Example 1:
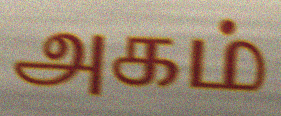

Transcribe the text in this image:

அகம்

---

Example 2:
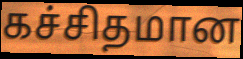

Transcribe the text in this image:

கச்சிதமான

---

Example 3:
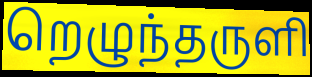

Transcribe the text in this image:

றெழுந்தருளி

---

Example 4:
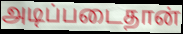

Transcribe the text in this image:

அடிப்படைதான்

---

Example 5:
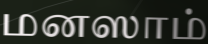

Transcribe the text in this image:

மனஸாம்